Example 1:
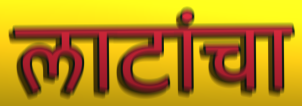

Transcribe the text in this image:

लाटांचा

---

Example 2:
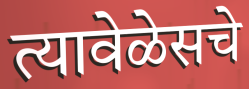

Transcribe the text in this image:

त्यावेळेसचे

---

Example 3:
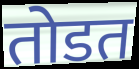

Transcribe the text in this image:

तोडत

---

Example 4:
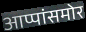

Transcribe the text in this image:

आप्पांसमोर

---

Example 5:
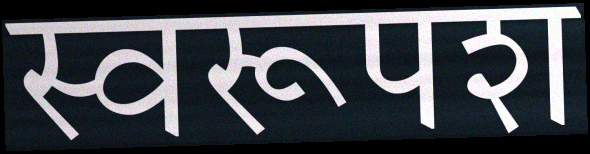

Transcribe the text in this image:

स्वरूपश